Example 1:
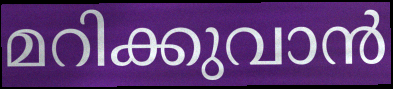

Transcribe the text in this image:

മറിക്കുവാൻ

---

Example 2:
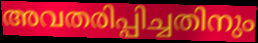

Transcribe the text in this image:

അവതരിപ്പിച്ചതിനും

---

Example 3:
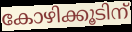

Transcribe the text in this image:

കോഴിക്കൂടിന്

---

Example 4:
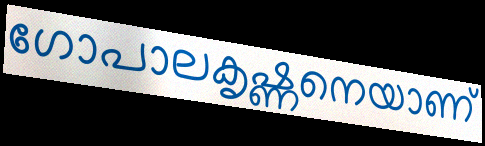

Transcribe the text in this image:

ഗോപാലകൃഷ്ണനെയാണ്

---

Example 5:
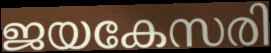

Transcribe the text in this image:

ജയകേസരി